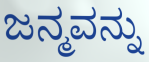
ಜನ್ಮವನ್ನು